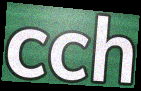
cch